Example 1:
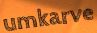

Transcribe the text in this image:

umkarve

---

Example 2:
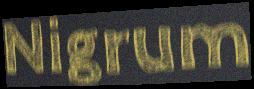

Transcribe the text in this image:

Nigrum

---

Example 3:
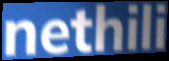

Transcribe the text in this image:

nethili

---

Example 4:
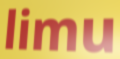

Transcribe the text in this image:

limu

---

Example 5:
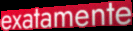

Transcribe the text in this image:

exatamente